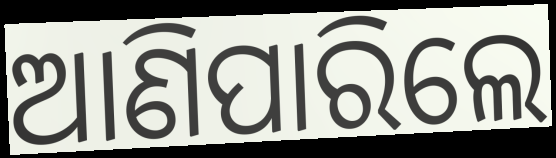
ଆଣିପାରିଲେ